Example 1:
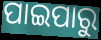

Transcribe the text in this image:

ପାଇପାରୁ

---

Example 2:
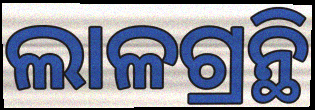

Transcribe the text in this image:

ଲାଳଗ୍ରନ୍ଥି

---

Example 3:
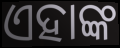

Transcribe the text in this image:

ଏହାଙ୍କ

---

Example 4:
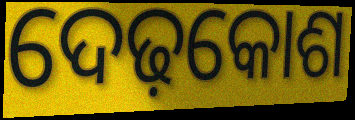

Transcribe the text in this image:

ଦେଢ଼କୋଶ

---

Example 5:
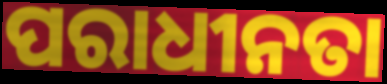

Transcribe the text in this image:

ପରାଧୀନତା